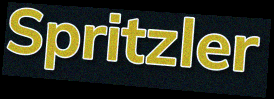
Spritzler